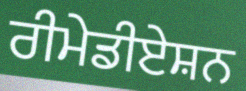
ਰੀਮੇਡੀਏਸ਼ਨ